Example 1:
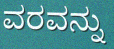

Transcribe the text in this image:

ವರವನ್ನು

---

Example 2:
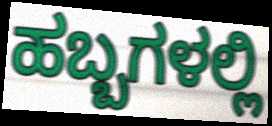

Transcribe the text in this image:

ಹಬ್ಬಗಳಲ್ಲಿ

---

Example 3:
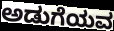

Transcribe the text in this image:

ಅಡುಗೆಯವ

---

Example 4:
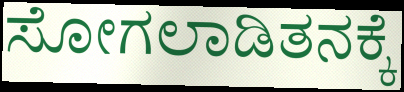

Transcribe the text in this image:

ಸೋಗಲಾಡಿತನಕ್ಕೆ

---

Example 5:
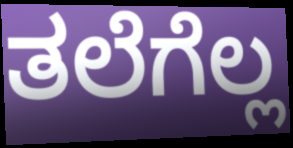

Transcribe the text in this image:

ತಲೆಗೆಲ್ಲ